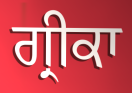
ਗ੍ਰੀਕਾ